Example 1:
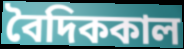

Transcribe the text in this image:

বৈদিককাল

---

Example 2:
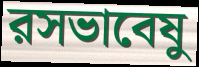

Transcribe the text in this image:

রসভাবেষু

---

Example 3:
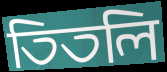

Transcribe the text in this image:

তিতলি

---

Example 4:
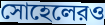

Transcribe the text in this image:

সোহেলেরও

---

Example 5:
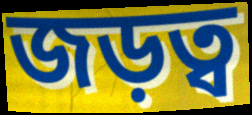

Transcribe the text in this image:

জড়ত্ব